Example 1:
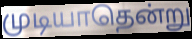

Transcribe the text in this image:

முடியாதென்று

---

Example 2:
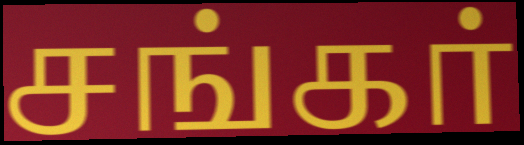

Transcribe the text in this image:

சங்கர்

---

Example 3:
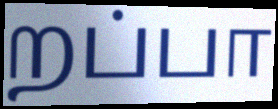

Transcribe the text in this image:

றப்பா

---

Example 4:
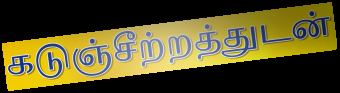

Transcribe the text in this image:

கடுஞ்சீற்றத்துடன்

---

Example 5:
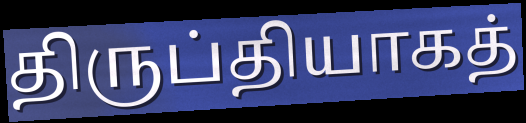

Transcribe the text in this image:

திருப்தியாகத்